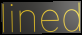
lined